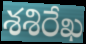
శశిరేఖ